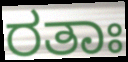
ರತಾಃ